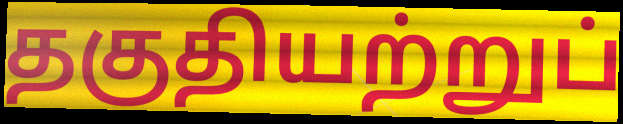
தகுதியற்றுப்